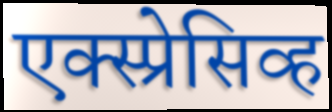
एक्स्प्रेसिव्ह